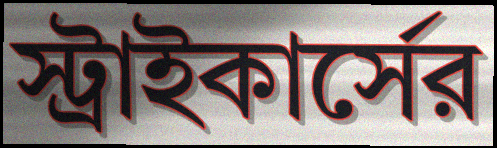
স্ট্রাইকার্সের